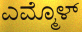
ಎಮ್ಮೊಳ್